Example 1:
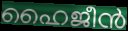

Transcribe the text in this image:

ഹൈജീൻ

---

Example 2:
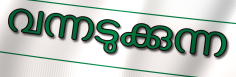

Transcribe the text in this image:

വന്നടുക്കുന്ന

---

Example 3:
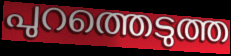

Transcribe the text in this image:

പുറത്തെടുത്ത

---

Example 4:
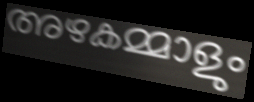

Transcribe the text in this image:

അഴകമ്മാളും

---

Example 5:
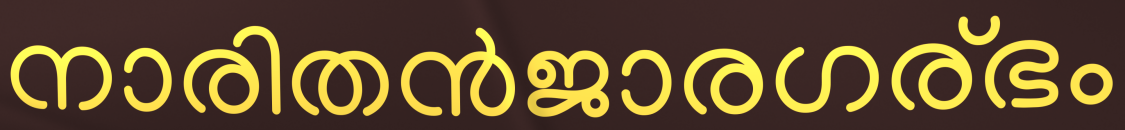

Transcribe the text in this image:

നാരിതൻജാരഗര്ഭം